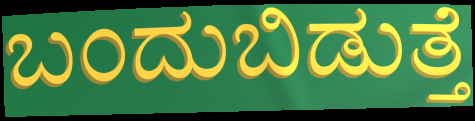
ಬಂದುಬಿಡುತ್ತೆ